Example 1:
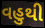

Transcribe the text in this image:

વહુથી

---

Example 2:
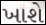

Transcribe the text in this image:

ખાશે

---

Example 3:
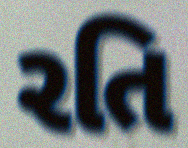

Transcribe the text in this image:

રતિ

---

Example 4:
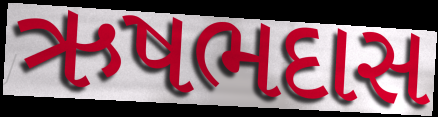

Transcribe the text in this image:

ઋષભદાસ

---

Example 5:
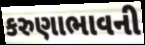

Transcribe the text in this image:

કરુણાભાવની